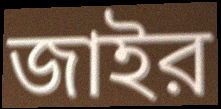
জাইর